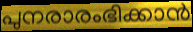
പുനരാരംഭിക്കാൻ